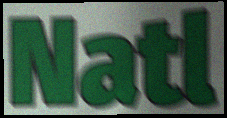
Natl